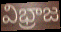
విభ్రాజ